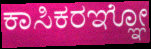
ಕಾಸಿಕರಞ್ಞೋ